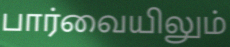
பார்வையிலும்